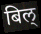
बिल्